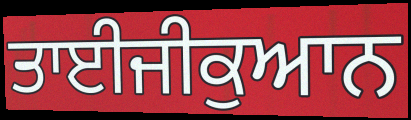
ਤਾਈਜੀਕੁਆਨ